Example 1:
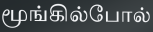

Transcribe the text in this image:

மூங்கில்போல்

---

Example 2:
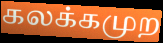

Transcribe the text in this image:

கலக்கமுற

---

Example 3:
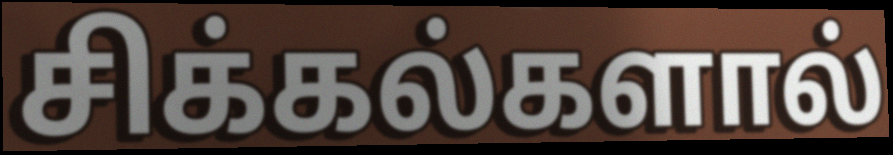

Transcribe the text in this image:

சிக்கல்களால்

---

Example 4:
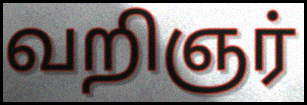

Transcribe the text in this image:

வறிஞர்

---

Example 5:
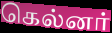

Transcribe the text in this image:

கெல்னர்